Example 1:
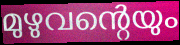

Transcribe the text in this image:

മുഴുവന്റെയും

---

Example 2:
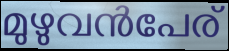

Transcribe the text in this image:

മുഴുവൻപേര്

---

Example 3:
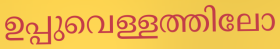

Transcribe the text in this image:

ഉപ്പുവെള്ളത്തിലോ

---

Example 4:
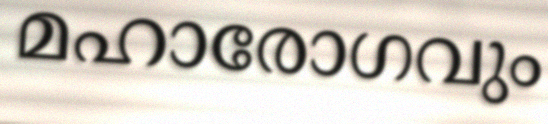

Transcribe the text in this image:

മഹാരോഗവും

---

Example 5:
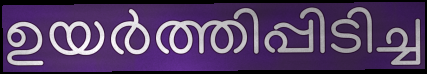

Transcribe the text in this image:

ഉയർത്തിപ്പിടിച്ച